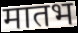
मातभ